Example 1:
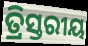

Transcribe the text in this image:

ତ୍ରିସ୍ତରୀୟ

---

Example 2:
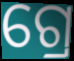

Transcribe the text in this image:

ଗ୍ରେ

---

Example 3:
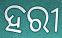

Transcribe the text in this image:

ହରୀ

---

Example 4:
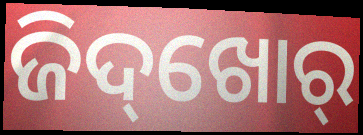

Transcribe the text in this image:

ଜିଦ୍‌ଖୋର୍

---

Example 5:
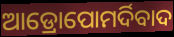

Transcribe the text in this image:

ଆଡ୍ରୋପୋମର୍ଦିବାଦ